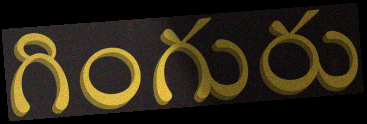
గింగురు